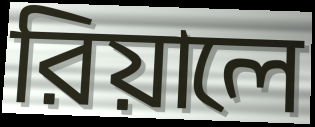
রিয়ালে